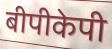
बीपीकेपी